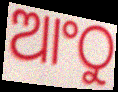
ଆଂଠୁ